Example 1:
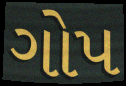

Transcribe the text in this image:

ગોપ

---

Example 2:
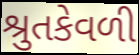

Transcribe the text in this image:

શ્રુતકેવળી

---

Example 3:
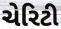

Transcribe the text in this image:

ચેરિટી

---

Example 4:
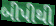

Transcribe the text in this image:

બીપીથી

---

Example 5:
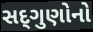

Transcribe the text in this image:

સદ્‌ગુણોનો